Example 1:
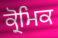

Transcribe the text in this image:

ਕ੍ਰੋਮਿਕ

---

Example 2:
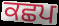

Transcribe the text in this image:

ਕਛਪ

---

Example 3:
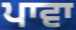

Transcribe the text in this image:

ਪਾਵਾ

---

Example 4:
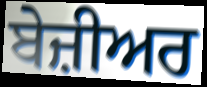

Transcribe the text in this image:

ਬੇਜ਼ੀਅਰ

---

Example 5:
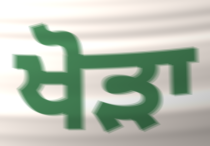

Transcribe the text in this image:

ਖੋੜਾ